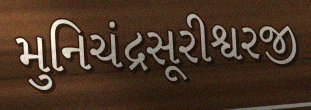
મુનિચંદ્રસૂરીશ્વરજી